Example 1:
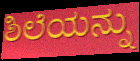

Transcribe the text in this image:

ಶಿಲೆಯನ್ನು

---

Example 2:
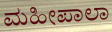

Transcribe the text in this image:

ಮಹೀಪಾಲಾ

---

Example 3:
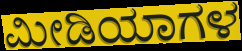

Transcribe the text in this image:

ಮೀಡಿಯಾಗಳ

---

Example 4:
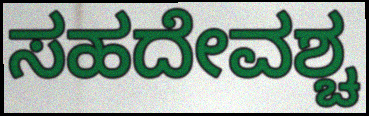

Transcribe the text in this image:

ಸಹದೇವಶ್ಚ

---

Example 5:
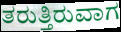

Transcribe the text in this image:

ತರುತ್ತಿರುವಾಗ